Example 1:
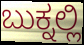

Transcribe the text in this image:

ಬುಕ್ನಲ್ಲಿ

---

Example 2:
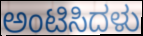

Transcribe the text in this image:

ಅಂಟಿಸಿದಳು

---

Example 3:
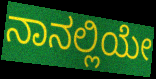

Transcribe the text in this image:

ನಾನಲ್ಲಿಯೇ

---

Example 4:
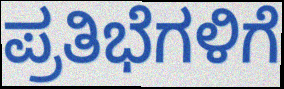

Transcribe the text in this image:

ಪ್ರತಿಭೆಗಳಿಗೆ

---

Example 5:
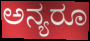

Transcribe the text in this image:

ಅನ್ಯರೂ